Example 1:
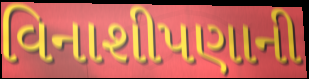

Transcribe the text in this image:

વિનાશીપણાની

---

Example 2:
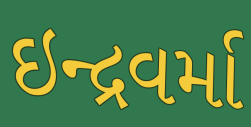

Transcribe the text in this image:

ઇન્દ્રવર્મા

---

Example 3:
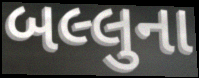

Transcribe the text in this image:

બલ્લુના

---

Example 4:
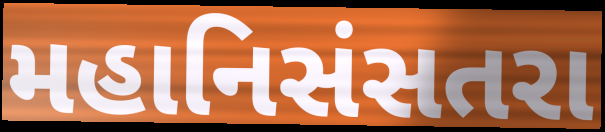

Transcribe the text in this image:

મહાનિસંસતરા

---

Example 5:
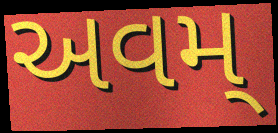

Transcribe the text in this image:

અવમ્